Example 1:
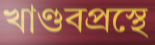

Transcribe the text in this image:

খাণ্ডবপ্রস্থে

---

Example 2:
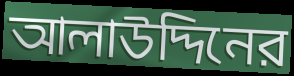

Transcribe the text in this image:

আলাউদ্দিনের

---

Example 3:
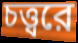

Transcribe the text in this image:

চত্ত্বরে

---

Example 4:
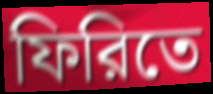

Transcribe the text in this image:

ফিরিতে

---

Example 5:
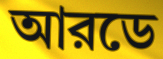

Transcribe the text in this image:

আরডে